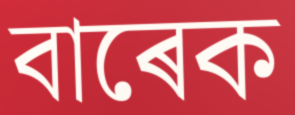
বাৰেক